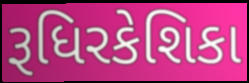
રૂધિરકેશિકા